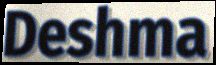
Deshma